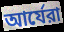
আর্যেরা